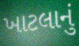
ખાટલાનું